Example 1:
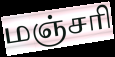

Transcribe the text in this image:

மஞ்சரி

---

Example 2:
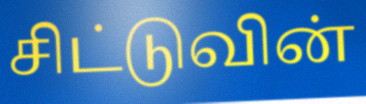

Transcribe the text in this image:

சிட்டுவின்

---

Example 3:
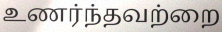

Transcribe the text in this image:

உணர்ந்தவற்றை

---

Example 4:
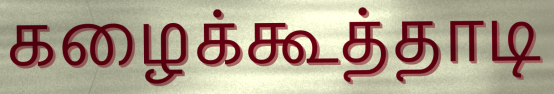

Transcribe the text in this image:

கழைக்கூத்தாடி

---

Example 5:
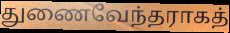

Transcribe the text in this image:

துணைவேந்தராகத்